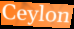
Ceylon